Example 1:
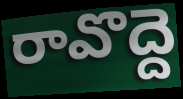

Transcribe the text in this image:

రావొద్దె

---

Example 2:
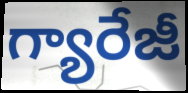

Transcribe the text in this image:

గ్యారేజీ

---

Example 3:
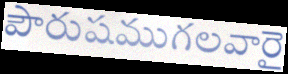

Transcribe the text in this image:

పౌరుషముగలవారై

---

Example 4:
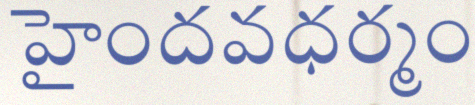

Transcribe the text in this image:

హైందవధర్మం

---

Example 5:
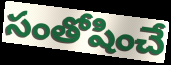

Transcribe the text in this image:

సంతోషించే